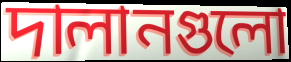
দালানগুলো